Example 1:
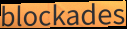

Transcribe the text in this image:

blockades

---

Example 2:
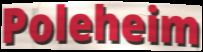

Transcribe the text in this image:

Poleheim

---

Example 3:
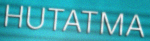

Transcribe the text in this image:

HUTATMA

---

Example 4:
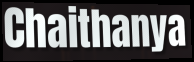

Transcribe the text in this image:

Chaithanya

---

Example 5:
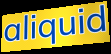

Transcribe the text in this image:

aliquid